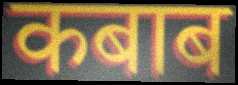
कबाब